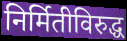
निर्मितीविरुद्ध